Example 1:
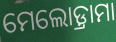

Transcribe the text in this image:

ମେଲୋଡ଼୍ରାମା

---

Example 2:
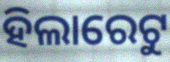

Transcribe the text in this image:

ହିଲାରେଟୁ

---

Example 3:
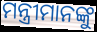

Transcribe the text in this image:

ମନ୍ତ୍ରୀମାନଙ୍କୁ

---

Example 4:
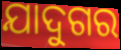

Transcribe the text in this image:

ଯାଦୁଗର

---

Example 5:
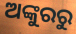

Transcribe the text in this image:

ଅଙ୍କୁରରୁ